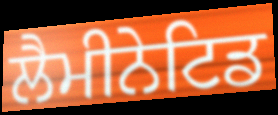
ਲੈਮੀਨੇਟਿਡ